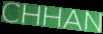
CHHAN